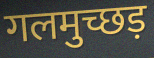
गलमुच्छड़